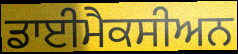
ਡਾਈਮੈਕਸੀਅਨ